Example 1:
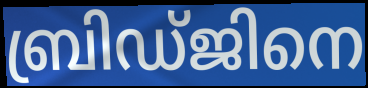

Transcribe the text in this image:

ബ്രിഡ്ജിനെ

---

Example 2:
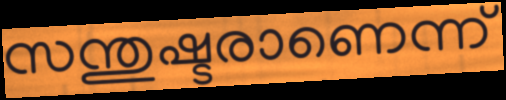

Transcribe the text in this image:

സന്തുഷ്ടരാണെന്ന്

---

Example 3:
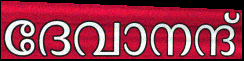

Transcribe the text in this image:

ദേവാനന്ദ്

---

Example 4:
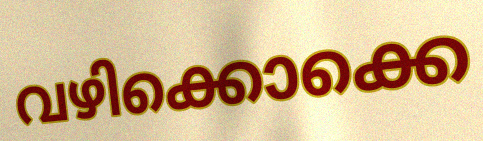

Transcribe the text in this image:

വഴിക്കൊക്കെ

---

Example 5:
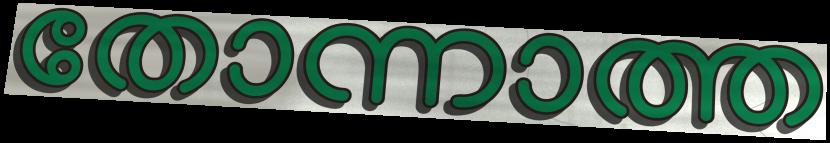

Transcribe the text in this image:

തോന്നാത്ത